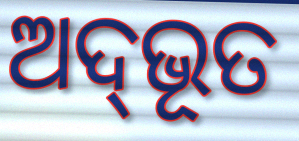
ଅଦ୍‍ଭୂତ